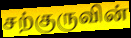
சற்குருவின்